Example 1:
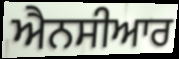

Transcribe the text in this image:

ਐਨਸੀਆਰ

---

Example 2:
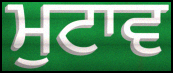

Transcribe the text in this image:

ਮੁਟਾਵ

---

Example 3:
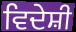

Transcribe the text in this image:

ਵਿਦੇਸ਼ੀ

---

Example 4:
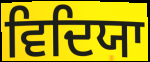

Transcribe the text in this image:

ਵਿਦਿਯਾ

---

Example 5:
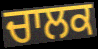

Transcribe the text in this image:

ਚਾਲਕ